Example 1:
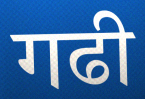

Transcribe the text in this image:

गढी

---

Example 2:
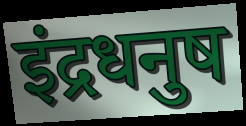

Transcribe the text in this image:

इंद्रधनुष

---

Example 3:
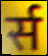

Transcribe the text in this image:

र्स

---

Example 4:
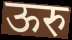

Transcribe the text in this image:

ऊरु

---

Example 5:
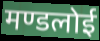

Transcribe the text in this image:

मण्डलोई